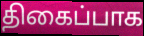
திகைப்பாக